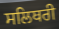
ਸਲਿਥਰੀ